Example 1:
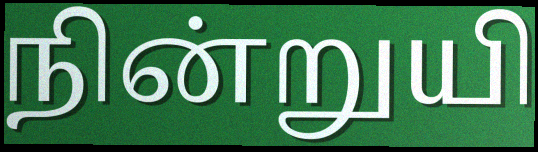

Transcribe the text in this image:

நின்றுயி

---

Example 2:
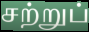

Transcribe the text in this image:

சற்றுப்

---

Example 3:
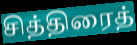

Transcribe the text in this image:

சித்திரைத்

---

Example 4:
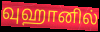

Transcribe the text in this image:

வுஹானில்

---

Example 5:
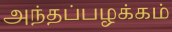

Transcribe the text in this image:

அந்தப்பழக்கம்